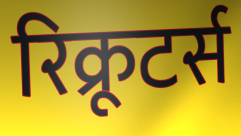
रिक्रूटर्स